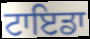
ਟਾਇਡਾ